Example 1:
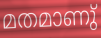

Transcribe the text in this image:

മതമാണു്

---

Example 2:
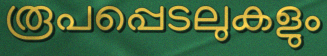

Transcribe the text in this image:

രൂപപ്പെടലുകളും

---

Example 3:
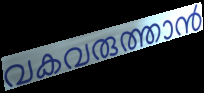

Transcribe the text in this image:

വകവരുത്താൻ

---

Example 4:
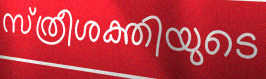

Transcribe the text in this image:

സ്‌ത്രീശക്തിയുടെ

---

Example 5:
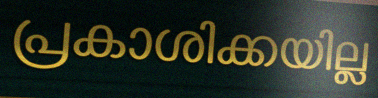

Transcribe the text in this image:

പ്രകാശിക്കയില്ല